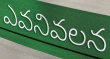
ఎవనివలన